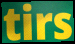
tirs